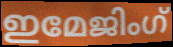
ഇമേജിംഗ്